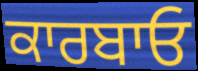
ਕਾਰਬਾਓ